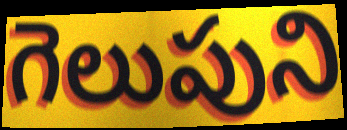
గెలుపుని